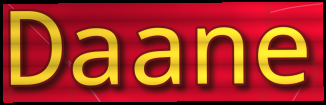
Daane